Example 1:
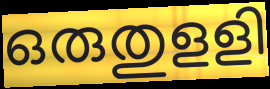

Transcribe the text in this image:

ഒരുതുളളി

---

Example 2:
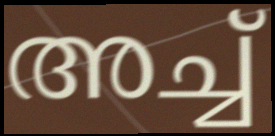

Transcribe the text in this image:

അച്ച്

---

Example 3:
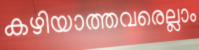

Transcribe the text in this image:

കഴിയാത്തവരെല്ലാം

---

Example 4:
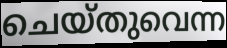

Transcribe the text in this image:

ചെയ്തുവെന്ന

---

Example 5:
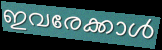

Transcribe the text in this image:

ഇവരേക്കാൾ